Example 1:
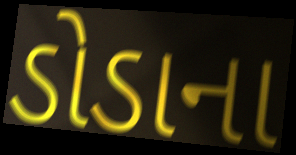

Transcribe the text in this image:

ડોડાના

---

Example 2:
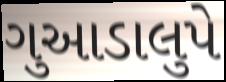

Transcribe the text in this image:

ગુઆડાલુપે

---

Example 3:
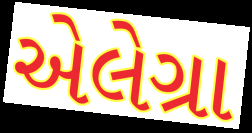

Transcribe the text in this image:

એલેગ્રા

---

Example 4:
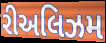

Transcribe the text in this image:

રીઅલિઝમ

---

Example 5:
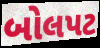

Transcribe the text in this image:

બોલપટ